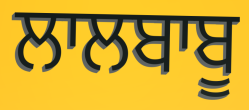
ਲਾਲਬਾਬੂ